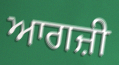
ਆਗਜ਼ੀ